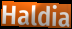
Haldia